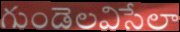
గుండెలవిసేలా